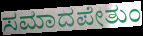
ಸಮಾದಪೇತುಂ